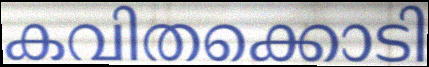
കവിതക്കൊടി